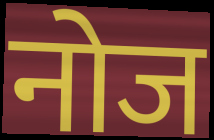
नोज